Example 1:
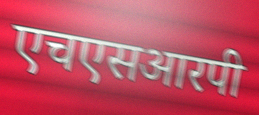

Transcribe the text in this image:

एचएसआरपी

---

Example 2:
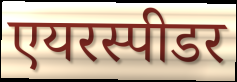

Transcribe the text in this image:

एयरस्पीडर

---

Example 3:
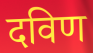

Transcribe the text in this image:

दविण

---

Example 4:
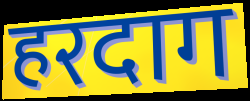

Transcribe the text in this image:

हरदाग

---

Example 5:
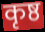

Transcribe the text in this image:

कृष्ठ